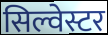
सिल्वेस्टर